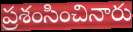
ప్రశంసించినారు